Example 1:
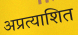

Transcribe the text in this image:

अप्रत्याशित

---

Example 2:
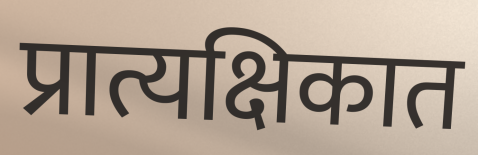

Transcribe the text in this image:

प्रात्यक्षिकात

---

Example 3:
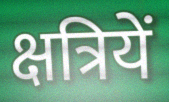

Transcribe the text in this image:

क्षत्रियें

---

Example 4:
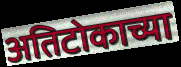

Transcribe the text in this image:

अतिटोकाच्या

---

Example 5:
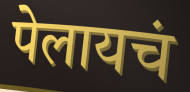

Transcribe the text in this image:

पेलायचं